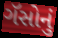
ગૅસોનું